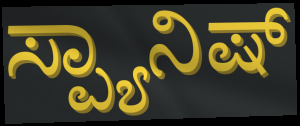
ಸ್ಪ್ಯಾನಿಷ್